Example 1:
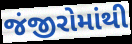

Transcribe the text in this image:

જંજીરોમાંથી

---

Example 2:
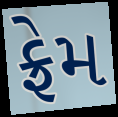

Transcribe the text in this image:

ફ્રેમ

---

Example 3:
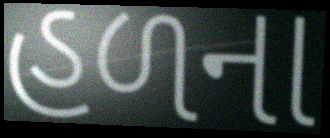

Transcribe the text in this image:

હળના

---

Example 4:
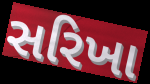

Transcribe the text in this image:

સરિખા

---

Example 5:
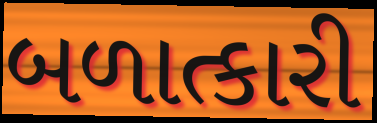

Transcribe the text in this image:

બળાત્કારી